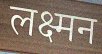
लक्ष्मन